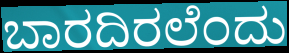
ಬಾರದಿರಲೆಂದು